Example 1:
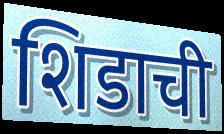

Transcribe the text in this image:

शिडाची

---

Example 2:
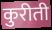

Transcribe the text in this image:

कुरीती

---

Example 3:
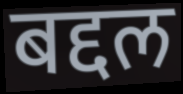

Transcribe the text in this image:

बद्दल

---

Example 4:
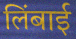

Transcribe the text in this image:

लिंबाई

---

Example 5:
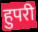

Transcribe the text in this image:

हुपरी